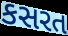
કસરત